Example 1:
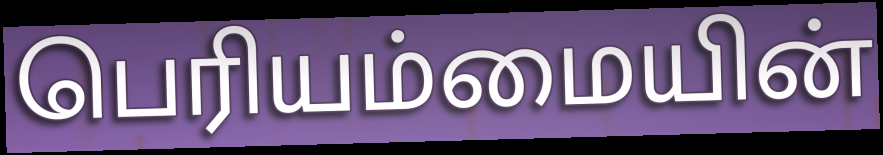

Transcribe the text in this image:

பெரியம்மையின்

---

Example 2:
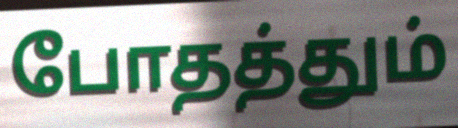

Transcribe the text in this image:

போதத்தும்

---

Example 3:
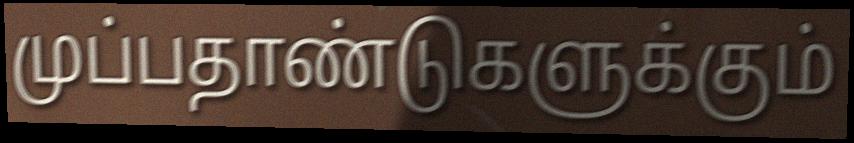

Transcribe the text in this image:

முப்பதாண்டுகளுக்கும்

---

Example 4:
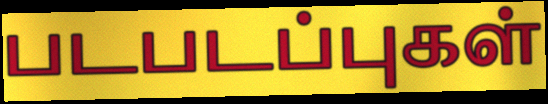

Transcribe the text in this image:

படபடப்புகள்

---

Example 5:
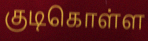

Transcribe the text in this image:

குடிகொள்ள